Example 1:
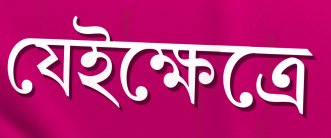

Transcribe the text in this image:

যেইক্ষেত্রে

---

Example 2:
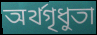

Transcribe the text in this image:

অর্থগৃধুতা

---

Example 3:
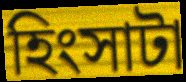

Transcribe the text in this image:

হিংসাটা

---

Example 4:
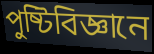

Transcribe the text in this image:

পুষ্টিবিজ্ঞানে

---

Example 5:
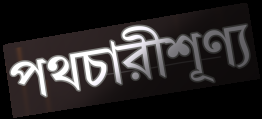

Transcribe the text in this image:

পথচারীশূণ্য